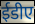
ईडीए